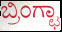
ಬ್ರಿಂಗ್ಟಾ